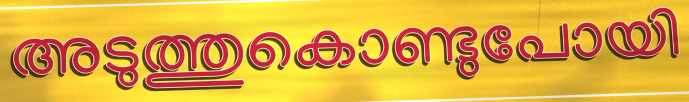
അടുത്തുകൊണ്ടുപോയി